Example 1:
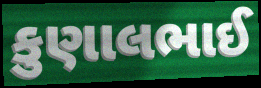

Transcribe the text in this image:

કુણાલભાઈ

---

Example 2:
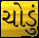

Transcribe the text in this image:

ચોડું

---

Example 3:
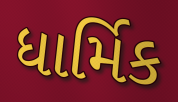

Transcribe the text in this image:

ધાર્મિક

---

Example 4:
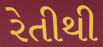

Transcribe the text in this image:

રેતીથી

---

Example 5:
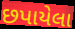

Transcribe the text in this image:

છપાયેલા